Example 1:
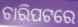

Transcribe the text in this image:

ଚାରିପଟରେ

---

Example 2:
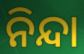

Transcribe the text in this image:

ନିନ୍ଦା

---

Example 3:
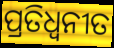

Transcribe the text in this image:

ପ୍ରତିଧ୍ବନୀତ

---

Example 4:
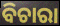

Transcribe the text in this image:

ବିଚାରା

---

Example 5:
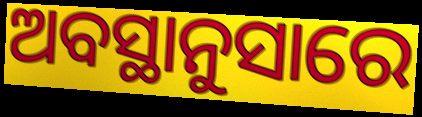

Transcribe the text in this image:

ଅବସ୍ଥାନୁସାରେ